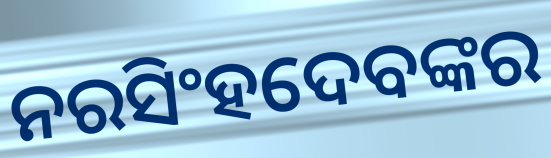
ନରସିଂହଦେବଙ୍କର